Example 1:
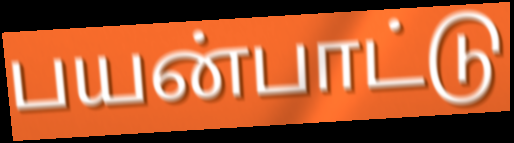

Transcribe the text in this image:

பயன்பாட்டு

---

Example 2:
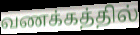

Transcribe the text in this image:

வணக்கத்தில்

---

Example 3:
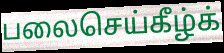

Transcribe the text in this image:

பலைசெய்கீழ்க்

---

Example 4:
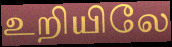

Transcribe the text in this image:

உறியிலே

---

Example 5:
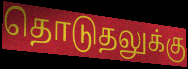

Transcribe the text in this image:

தொடுதலுக்கு